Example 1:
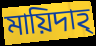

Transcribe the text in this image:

মায়িদাহ্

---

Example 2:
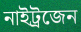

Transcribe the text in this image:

নাইট্রজেন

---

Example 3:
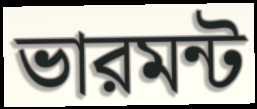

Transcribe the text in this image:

ভারমন্ট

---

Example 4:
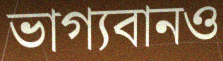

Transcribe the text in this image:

ভাগ্যবানও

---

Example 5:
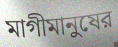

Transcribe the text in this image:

মাগীমানুষের